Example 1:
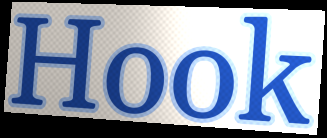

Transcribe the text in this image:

Hook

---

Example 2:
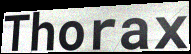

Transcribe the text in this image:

Thorax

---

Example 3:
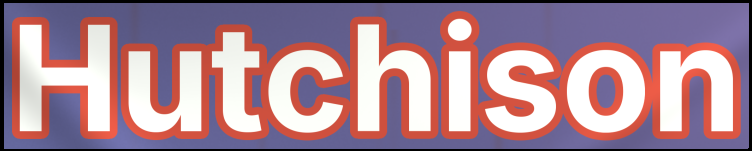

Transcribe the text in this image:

Hutchison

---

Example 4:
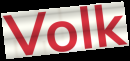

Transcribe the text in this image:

Volk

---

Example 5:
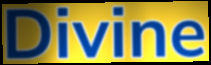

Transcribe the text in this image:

Divine